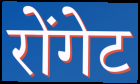
रोंगेट